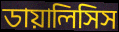
ডায়ালিসিস